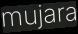
mujara